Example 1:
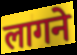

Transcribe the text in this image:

लागने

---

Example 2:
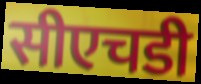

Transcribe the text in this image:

सीएचडी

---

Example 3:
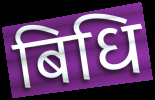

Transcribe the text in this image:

बिधि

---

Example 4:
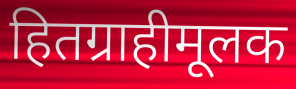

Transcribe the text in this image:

हितग्राहीमूलक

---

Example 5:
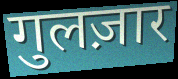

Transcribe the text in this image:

गुलज़ार